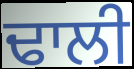
ਢਾਲੀ